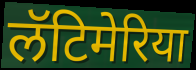
लॅटिमेरिया